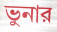
ভুনার